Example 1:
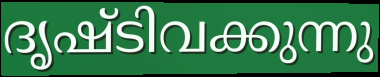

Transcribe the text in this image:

ദൃഷ്ടിവക്കുന്നു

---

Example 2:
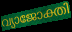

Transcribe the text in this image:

വ്യാജോക്തി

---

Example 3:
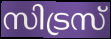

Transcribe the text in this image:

സിട്രസ്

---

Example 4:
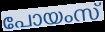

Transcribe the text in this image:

പോയംസ്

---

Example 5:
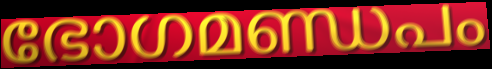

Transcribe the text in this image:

ഭോഗമണ്ഡപം